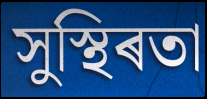
সুস্থিৰতা